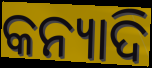
କନ୍ୟାଦି